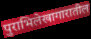
पुराभिलेखागारातील